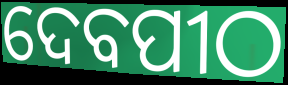
ଦେବପୀଠ